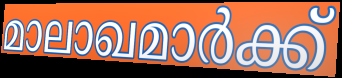
മാലാഖമാർക്ക്